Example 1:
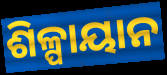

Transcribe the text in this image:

ଶିଳ୍ପାୟାନ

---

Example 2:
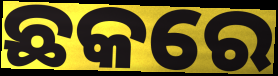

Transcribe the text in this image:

ଛକରେ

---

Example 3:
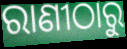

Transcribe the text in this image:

ରାଣୀଠାରୁ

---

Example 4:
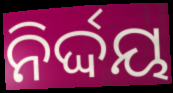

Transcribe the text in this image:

ନିର୍ଦ୍ଦୟ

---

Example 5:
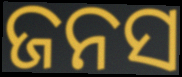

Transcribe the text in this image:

ଜନସ